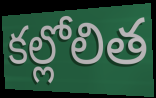
కల్లోలిత